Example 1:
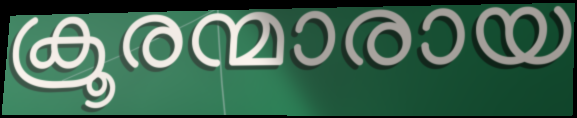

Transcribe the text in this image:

ക്രൂരന്മാരായ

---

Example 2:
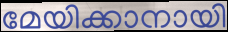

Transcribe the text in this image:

മേയിക്കാനായി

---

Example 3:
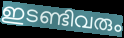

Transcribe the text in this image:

ഇടണ്ടിവരും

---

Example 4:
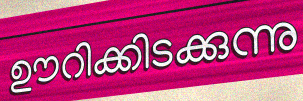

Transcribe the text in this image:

ഊറിക്കിടക്കുന്നു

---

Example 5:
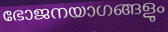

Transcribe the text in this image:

ഭോജനയാഗങ്ങളും